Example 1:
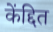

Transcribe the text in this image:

केंद्दित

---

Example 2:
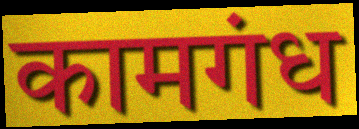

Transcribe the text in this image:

कामगंध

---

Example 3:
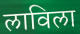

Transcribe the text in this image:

लाविला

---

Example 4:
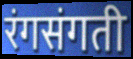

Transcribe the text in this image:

रंगसंगती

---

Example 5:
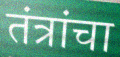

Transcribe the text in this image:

तंत्रांचा